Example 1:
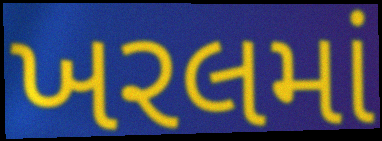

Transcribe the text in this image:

ખરલમાં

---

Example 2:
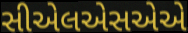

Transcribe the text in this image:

સીએલએસએએ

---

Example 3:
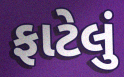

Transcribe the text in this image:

ફાટેલું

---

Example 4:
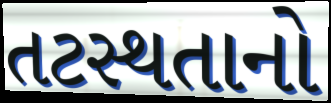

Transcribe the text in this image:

તટસ્થતાનો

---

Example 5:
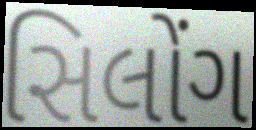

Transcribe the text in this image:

સિલોંગ